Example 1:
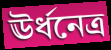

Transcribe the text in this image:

ঊর্ধনেত্র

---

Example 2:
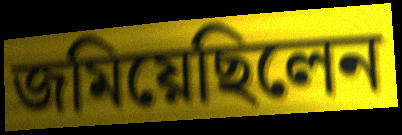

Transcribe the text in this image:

জমিয়েছিলেন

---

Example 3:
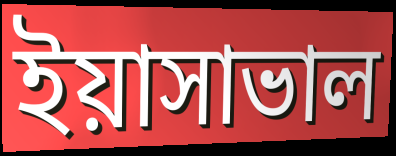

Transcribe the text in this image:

ইয়াসাভাল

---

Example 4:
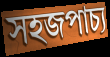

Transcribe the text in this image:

সহজপাচ্য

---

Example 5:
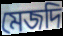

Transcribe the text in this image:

মেজদি